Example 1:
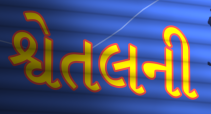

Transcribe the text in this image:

શ્વેતલની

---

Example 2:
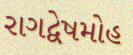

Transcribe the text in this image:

રાગદ્વેષમોહ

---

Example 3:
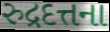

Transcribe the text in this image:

રુદ્રદત્તના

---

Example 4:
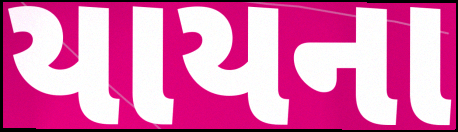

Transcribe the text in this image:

યાયના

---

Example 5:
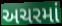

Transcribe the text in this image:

અચરમાં